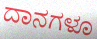
ದಾನಗಳೂ